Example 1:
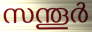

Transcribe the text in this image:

സന്തൂർ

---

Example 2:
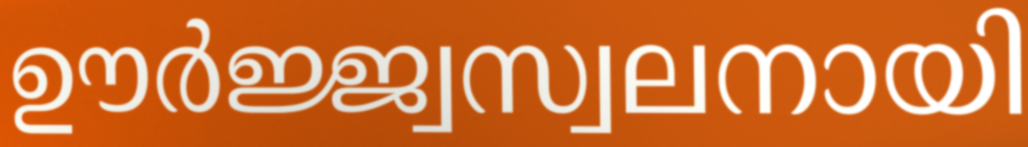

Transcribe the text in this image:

ഊർജ്ജ്വസ്വലനായി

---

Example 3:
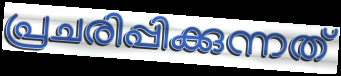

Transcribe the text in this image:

പ്രചരിപ്പിക്കുന്നത്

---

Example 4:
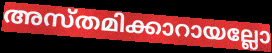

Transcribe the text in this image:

അസ്തമിക്കാറായല്ലോ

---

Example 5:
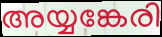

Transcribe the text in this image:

അയ്യങ്കേരി